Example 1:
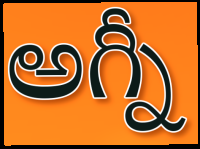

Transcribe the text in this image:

అగ్నీ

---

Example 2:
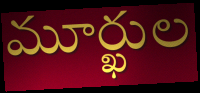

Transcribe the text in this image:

మూర్ఖుల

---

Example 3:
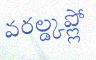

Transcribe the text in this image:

వరల్డ్కప్ల్లో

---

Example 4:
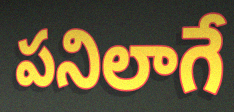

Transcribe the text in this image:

పనిలాగే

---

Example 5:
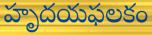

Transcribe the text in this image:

హృదయఫలకం